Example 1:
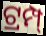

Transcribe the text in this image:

ଟ୍ରମ୍ପ୍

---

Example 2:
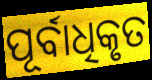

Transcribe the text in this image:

ପୂର୍ବାଧିକୃତ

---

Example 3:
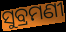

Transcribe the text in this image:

ସୁବ୍ରମଣୀ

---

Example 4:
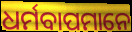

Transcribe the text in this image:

ଧର୍ମବାପମାନେ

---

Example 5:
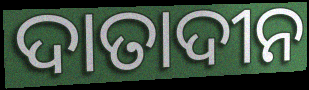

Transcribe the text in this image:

ଦାତାଦୀନ